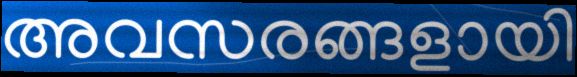
അവസരങ്ങളായി